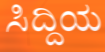
ಸಿದ್ದಿಯ